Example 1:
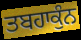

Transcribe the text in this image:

ਤਬਹਾਕੁੰਨ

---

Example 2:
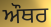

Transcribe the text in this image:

ਔਥਰ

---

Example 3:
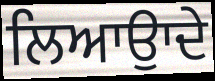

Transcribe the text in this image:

ਲਿਆਉਾਦੇ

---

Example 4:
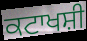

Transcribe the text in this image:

ਕਟਾਖਸ਼ੀ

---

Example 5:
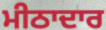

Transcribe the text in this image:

ਮੀਠਾਦਾਰ